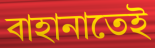
বাহানাতেই